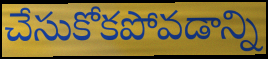
చేసుకోకపోవడాన్ని